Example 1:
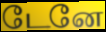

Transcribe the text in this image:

டேனே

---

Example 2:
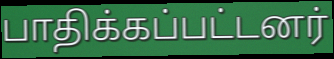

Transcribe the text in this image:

பாதிக்கப்பட்டனர்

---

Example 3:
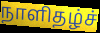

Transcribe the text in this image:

நாளிதழ்ச்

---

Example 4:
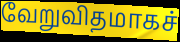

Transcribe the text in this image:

வேறுவிதமாகச்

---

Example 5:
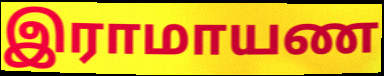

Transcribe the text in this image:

இராமாயண